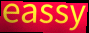
eassy